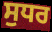
ਸੁਧਰ